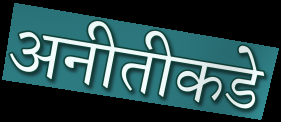
अनीतीकडे